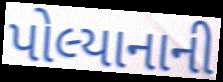
પોલ્યાનાની